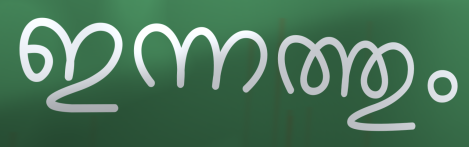
ഇന്നത്തും